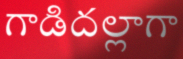
గాడిదల్లాగా